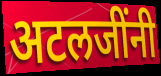
अटलजींनी